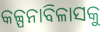
କଳ୍ପନାବିଳାସକୁ